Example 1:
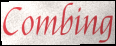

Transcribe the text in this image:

Combing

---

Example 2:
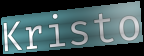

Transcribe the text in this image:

Kristo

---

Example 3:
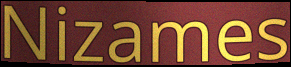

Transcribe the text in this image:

Nizames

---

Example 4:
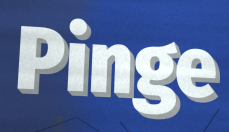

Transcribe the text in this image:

Pinge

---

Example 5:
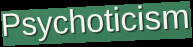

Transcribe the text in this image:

Psychoticism